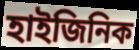
হাইজিনিক